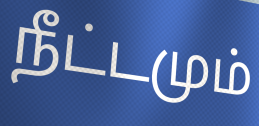
நீட்டமும்